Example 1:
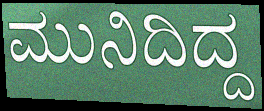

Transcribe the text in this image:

ಮುನಿದಿದ್ದ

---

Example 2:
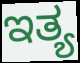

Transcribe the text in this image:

ಇತ್ಯ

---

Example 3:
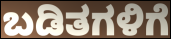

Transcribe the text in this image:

ಬಡಿತಗಳಿಗೆ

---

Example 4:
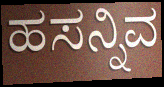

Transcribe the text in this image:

ಹಸನ್ನಿವ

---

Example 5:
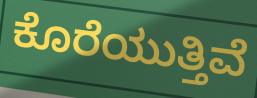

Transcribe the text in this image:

ಕೊರೆಯುತ್ತಿವೆ